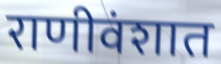
राणीवंशात